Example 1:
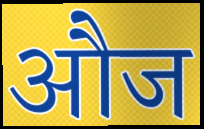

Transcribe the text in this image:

औज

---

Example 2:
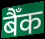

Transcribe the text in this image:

बैँक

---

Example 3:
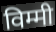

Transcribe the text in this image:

विम्मी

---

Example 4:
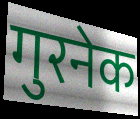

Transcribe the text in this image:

गुरनेक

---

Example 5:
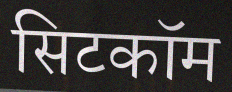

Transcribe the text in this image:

सिटकॉम